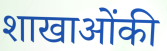
शाखाओंकी